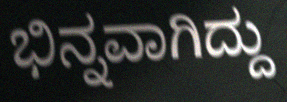
ಭಿನ್ನವಾಗಿದ್ದು